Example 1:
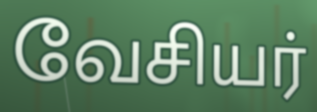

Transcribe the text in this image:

வேசியர்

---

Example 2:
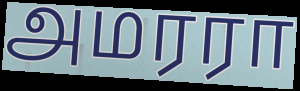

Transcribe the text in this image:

அமரரா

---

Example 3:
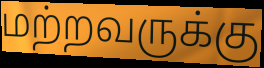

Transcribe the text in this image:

மற்றவருக்கு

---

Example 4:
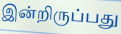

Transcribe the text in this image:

இன்றிருப்பது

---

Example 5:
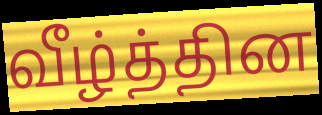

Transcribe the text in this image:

வீழ்த்தின